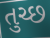
તુચ્છ